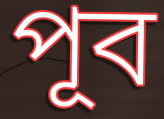
পূব